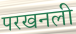
परखनली